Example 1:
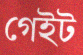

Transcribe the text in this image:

গেইট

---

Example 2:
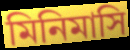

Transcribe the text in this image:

মিনিমাসি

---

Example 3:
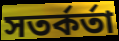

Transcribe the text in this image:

সতর্কর্তা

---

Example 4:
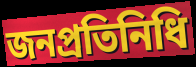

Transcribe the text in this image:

জনপ্রতিনিধি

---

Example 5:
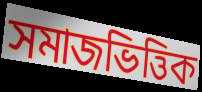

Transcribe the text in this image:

সমাজভিত্তিক